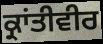
ਕ੍ਰਾਂਤੀਵੀਰ